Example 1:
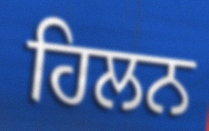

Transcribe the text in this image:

ਹਿਲਨ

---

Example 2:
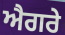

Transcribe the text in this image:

ਐਗਰੇ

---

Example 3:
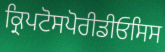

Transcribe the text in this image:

ਕ੍ਰਿਪਟੋਸਪੋਰੀਡੀਓਸਿਸ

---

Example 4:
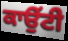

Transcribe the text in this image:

ਕਾਉਂਟੀ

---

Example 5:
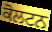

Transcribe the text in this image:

ਕੋਲਟਨ